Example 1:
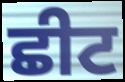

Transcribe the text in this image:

ਛੀਟ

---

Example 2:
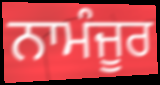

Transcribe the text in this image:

ਨਾਮੰਜੂਰ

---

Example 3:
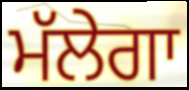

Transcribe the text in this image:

ਮੱਲੇਗਾ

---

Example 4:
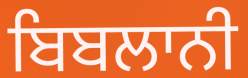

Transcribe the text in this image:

ਬਿਬਲਾਨੀ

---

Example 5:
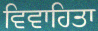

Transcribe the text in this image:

ਵਿਵਾਹਿਤਾ